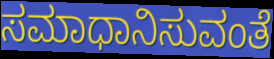
ಸಮಾಧಾನಿಸುವಂತೆ